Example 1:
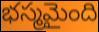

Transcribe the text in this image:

భస్మమైంది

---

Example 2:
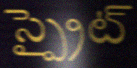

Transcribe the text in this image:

స్ప్రైట్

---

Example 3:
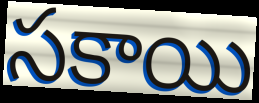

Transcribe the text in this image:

సకాయి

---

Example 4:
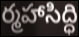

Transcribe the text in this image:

ర్మహాసిద్ధి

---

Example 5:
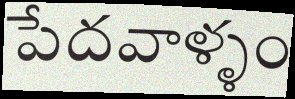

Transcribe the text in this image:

పేదవాళ్ళం